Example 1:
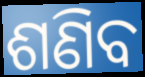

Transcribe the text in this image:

ଶଣିବ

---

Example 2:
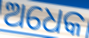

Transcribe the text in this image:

ଅଧେକ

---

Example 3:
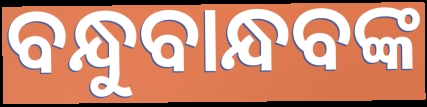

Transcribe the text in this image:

ବନ୍ଧୁବାନ୍ଧବଙ୍କ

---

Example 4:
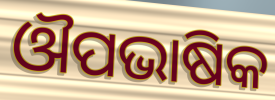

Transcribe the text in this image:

ଔପଭାଷିକ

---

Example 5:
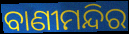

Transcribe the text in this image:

ବାଣୀମନ୍ଦିର